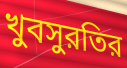
খুবসুরতির